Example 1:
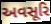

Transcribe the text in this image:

અવસૂરિ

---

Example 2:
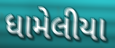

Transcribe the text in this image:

ધામેલીયા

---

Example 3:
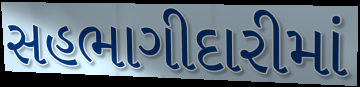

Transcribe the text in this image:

સહભાગીદારીમાં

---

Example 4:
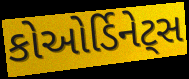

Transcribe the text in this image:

કોઓર્ડિનેટ્સ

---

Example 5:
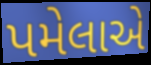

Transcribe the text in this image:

પમેલાએ